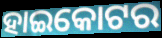
ହାଇକୋଟର